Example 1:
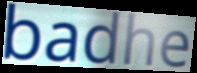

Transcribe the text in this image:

badhe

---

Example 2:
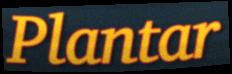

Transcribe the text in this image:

Plantar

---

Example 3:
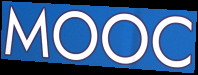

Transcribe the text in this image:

MOOC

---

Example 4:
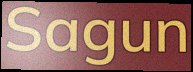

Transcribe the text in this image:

Sagun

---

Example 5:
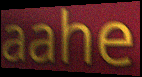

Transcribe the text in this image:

aahe